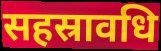
सहस्रावधि